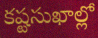
కష్టసుఖాల్లో